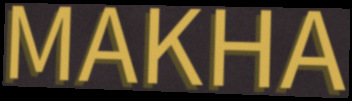
MAKHA